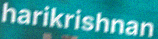
harikrishnan